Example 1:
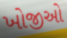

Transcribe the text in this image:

ખોજીઓ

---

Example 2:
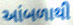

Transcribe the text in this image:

આંબળાથી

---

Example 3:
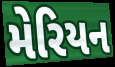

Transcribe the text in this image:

મેરિયન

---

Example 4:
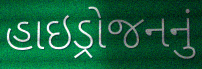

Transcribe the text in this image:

હાઇડ્રોજનનું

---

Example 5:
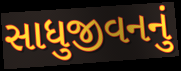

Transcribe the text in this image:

સાધુજીવનનું